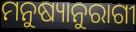
ମନୁଷ୍ୟାନୁରାଗୀ